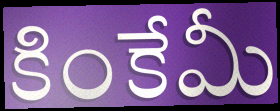
కింకేమీ